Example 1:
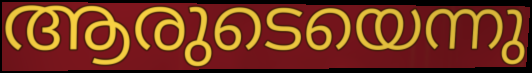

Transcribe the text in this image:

ആരുടെയെന്നു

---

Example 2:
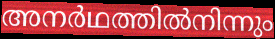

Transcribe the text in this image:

അനർഥത്തിൽനിന്നും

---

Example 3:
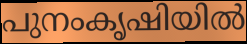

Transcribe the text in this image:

പുനംകൃഷിയിൽ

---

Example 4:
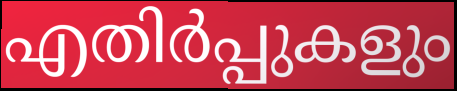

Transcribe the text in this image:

എതിർപ്പുകളും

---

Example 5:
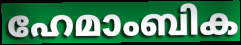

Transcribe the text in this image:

ഹേമാംബിക